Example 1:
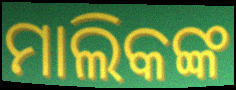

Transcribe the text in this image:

ମାଲିକଙ୍କ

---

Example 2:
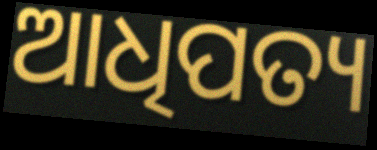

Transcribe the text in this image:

ଆଧିପତ୍ୟ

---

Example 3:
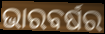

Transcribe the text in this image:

ଭାରବର୍ଷର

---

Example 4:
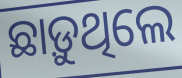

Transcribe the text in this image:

ଛାଡ଼ୁଥିଲେ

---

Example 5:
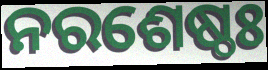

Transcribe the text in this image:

ନରଶେଷ୍ଠଃ